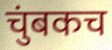
चुंबकच